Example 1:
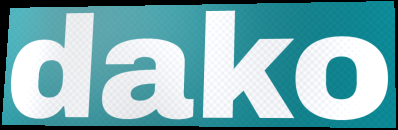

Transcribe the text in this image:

dako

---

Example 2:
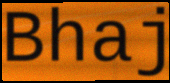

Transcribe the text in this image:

Bhaj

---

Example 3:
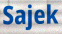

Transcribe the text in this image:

Sajek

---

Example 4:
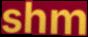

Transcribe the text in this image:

shm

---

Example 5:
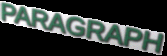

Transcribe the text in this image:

PARAGRAPH